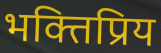
भक्तिप्रिय